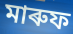
মাৰুফ